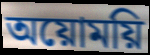
অয়োময়ি